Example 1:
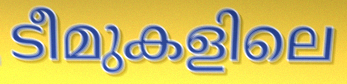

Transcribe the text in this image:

ടീമുകളിലെ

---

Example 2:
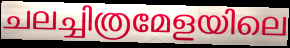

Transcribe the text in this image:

ചലച്ചിത്രമേളയിലെ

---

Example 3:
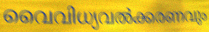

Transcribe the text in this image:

വൈവിധ്യവൽക്കരണവും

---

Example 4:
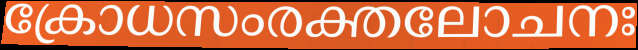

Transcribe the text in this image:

ക്രോധസംരക്തലോചനഃ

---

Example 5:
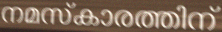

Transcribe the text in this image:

നമസ്‌കാരത്തിന്